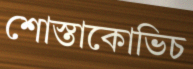
শোস্তাকোভিচ